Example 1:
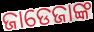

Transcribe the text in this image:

ଜାଡେଜାଙ୍କ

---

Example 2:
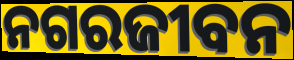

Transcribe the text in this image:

ନଗରଜୀବନ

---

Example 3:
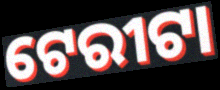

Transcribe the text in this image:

ଟେରୀଟା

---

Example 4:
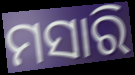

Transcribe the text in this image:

ମସାରି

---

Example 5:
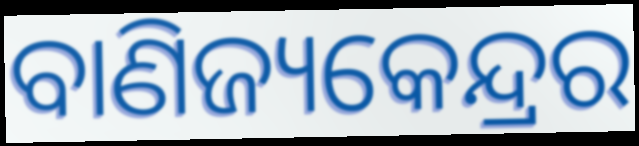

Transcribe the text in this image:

ବାଣିଜ୍ୟକେନ୍ଦ୍ରର